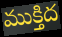
ముక్తిద